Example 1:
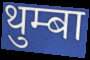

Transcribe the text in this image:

थुम्बा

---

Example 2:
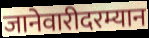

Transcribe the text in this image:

जानेवारीदरम्यान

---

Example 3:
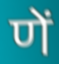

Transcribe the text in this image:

णें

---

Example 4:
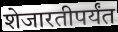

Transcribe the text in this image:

शेजारतीपर्यंत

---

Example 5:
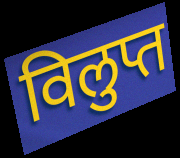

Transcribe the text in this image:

विलुप्त